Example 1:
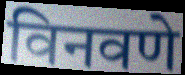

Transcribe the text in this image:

विनवणे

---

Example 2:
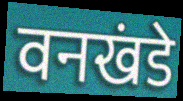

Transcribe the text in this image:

वनखंडे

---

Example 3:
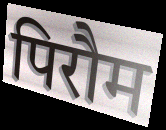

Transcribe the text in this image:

पिरौम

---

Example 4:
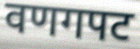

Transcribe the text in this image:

वणगपट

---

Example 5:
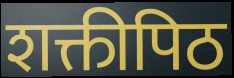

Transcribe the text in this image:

शक्तीपिठ